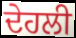
ਦੇਹਲੀ